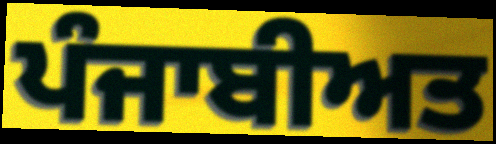
ਪੰਜਾਬੀਅਤ